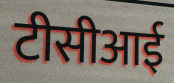
टीसीआई